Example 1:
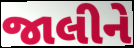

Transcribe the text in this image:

જાલીને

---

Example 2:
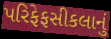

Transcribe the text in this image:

પરિફેફસીકલાનું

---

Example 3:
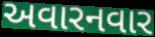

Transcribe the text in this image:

અવારનવાર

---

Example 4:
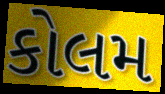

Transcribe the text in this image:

કોલમ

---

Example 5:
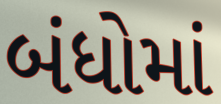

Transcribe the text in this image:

બંધોમાં